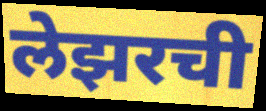
लेझरची